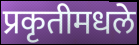
प्रकृतीमधले